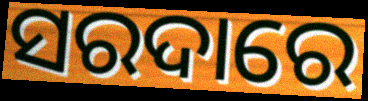
ସରଦାରେ